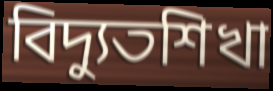
বিদ্যুতশিখা